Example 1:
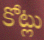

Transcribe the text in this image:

కోట్లు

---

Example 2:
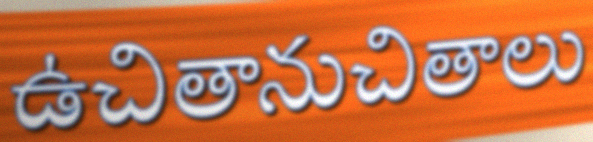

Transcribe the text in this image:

ఉచితానుచితాలు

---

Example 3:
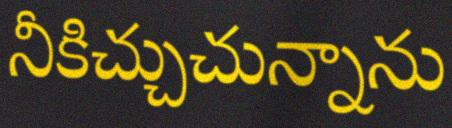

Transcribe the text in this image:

నీకిచ్చుచున్నాను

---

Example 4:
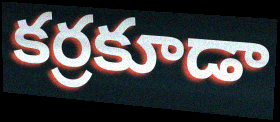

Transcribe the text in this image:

కర్రకూడా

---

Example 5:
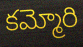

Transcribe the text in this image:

కమ్మోరి